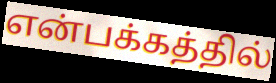
என்பக்கத்தில்